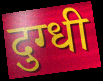
दुग्धी